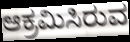
ಆಕ್ರಮಿಸಿರುವ